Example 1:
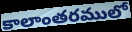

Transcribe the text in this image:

కాలాంతరములో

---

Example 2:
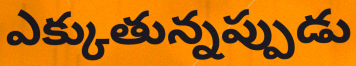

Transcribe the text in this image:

ఎక్కుతున్నప్పుడు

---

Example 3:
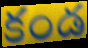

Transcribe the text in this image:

కండ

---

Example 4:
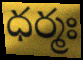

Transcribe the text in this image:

ధర్మః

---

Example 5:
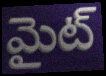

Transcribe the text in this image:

మైట్